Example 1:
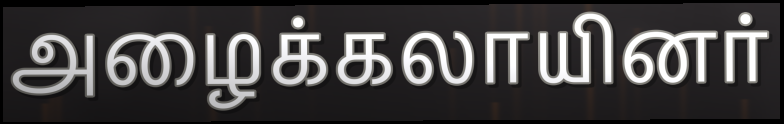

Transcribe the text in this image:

அழைக்கலாயினர்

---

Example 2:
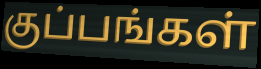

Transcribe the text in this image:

குப்பங்கள்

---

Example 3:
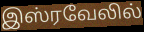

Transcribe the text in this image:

இஸ்ரவேலில்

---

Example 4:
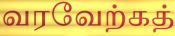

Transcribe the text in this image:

வரவேற்கத்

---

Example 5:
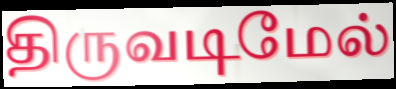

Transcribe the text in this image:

திருவடிமேல்